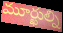
మూర్ఖుల్ని